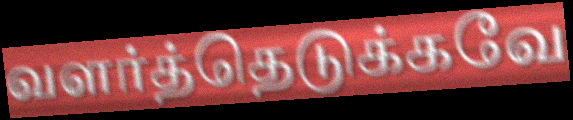
வளர்த்தெடுக்கவே